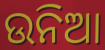
ଉନିଆ